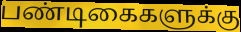
பண்டிகைகளுக்கு